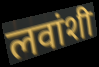
लवांशी